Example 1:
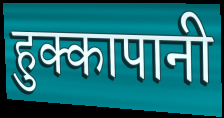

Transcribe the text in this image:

हुक्कापानी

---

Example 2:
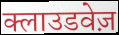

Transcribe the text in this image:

क्लाउडवेज़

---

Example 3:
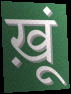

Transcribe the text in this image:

ख़ूं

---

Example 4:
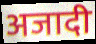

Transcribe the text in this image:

अजादी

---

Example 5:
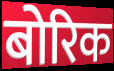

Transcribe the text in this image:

बोरिक